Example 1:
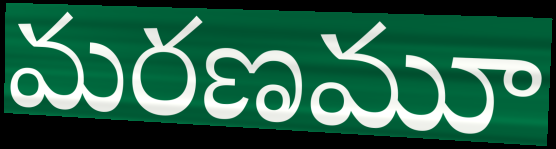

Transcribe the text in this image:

మరణమూ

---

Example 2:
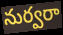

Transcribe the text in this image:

నుర్వరా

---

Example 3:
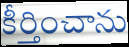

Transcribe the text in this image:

కీర్తించాను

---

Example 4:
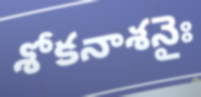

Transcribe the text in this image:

శోకనాశనైః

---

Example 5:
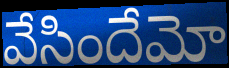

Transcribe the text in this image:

వేసిందేమో